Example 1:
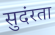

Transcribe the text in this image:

सुदंरता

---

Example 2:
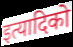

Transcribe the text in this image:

इत्यादिको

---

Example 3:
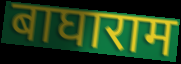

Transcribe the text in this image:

बाघाराम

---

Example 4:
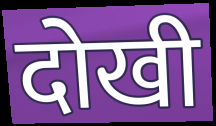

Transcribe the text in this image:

दोखी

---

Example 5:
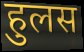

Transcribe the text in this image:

हुलस